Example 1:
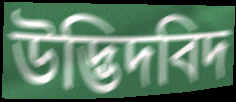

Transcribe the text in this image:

উদ্ভিদবিদ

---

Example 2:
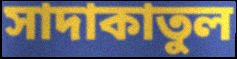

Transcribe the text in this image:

সাদাকাতুল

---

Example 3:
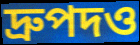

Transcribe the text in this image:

দ্রুপদও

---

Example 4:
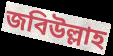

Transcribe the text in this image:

জবিউল্লাহ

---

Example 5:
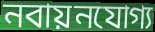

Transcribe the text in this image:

নবায়নযোগ্য